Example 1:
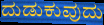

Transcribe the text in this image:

ದುಡುಕುವುದು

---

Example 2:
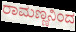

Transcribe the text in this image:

ರಾಮಣ್ಣನಿಂದ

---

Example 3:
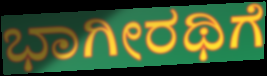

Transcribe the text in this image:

ಭಾಗೀರಥಿಗೆ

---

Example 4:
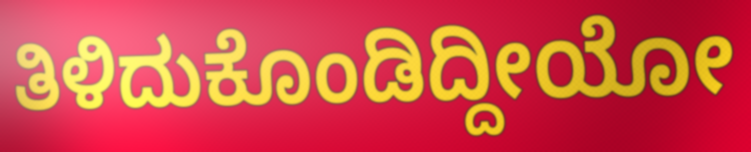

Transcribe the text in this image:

ತಿಳಿದುಕೊಂಡಿದ್ದೀಯೋ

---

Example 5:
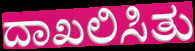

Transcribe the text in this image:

ದಾಖಲಿಸಿತು